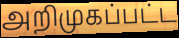
அறிமுகப்பட்ட